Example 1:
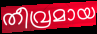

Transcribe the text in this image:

തീവ്രമായ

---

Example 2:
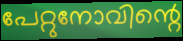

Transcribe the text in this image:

പേറ്റുനോവിന്റെ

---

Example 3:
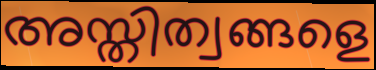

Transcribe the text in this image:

അസ്തിത്വങ്ങളെ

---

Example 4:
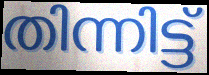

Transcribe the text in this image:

തിന്നിട്ട്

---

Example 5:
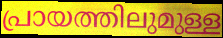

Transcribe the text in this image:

പ്രായത്തിലുമുള്ള